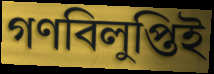
গণবিলুপ্তিই